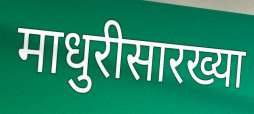
माधुरीसारख्या